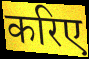
करिए